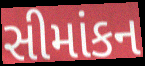
સીમાંકન